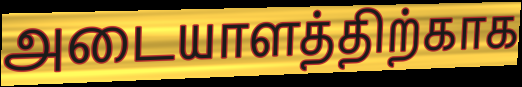
அடையாளத்திற்காக